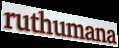
ruthumana